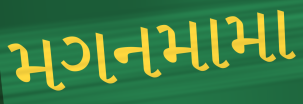
મગનમામા